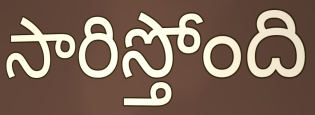
సారిస్తోంది